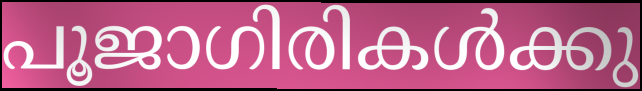
പൂജാഗിരികൾക്കു